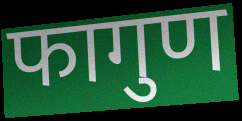
फागुण